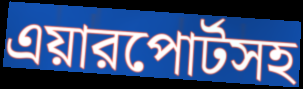
এয়ারপোর্টসহ